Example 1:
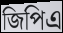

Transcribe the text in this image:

জিপিএ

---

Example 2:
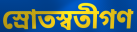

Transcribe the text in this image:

স্রোতস্বতীগণ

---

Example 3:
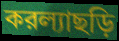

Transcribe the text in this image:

করল্যাছড়ি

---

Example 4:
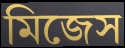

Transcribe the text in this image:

মিজেস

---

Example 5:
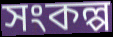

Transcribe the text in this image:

সংকল্প